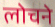
लोचने